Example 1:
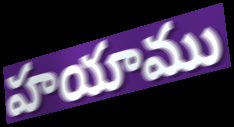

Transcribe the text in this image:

హయాము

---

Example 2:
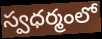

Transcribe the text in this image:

స్వధర్మంలో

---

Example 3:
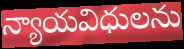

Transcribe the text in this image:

న్యాయవిధులను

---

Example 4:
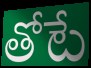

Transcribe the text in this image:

తోటే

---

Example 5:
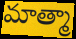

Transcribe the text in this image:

మాత్మా